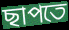
ছাপতে